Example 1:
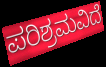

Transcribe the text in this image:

ಪರಿಶ್ರಮವಿದೆ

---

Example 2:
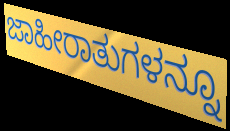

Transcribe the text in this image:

ಜಾಹೀರಾತುಗಳನ್ನೂ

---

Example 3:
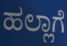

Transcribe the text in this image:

ಹಲ್ಲಾಗೆ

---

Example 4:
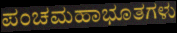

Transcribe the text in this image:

ಪಂಚಮಹಾಭೂತಗಳು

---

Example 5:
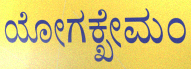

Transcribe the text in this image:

ಯೋಗಕ್ಖೇಮಂ